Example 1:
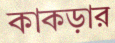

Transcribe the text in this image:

কাকড়ার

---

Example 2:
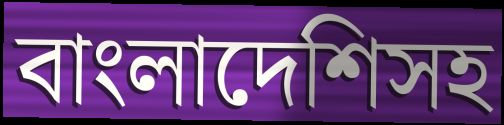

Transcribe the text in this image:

বাংলাদেশিসহ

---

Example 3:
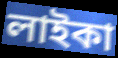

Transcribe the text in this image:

লাইকা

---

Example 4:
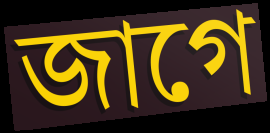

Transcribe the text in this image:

জাগে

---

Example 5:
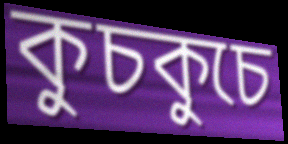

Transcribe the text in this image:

কুচকুচে